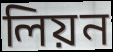
লিয়ন